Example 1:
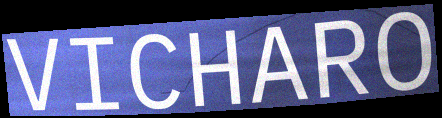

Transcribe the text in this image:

VICHARO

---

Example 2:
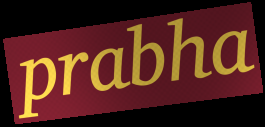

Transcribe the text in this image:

prabha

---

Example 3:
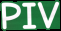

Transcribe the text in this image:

PIV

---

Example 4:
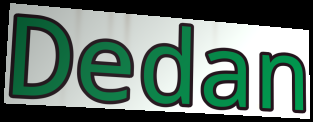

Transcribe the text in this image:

Dedan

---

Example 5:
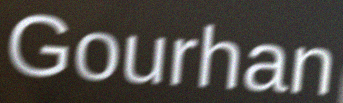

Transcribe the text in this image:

Gourhan